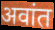
अवांत